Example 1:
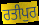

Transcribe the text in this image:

ਰਤੀਪੁਰ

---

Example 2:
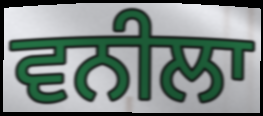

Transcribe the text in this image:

ਵਨੀਲਾ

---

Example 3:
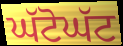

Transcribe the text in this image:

ਘੱਟੋਘੱਟ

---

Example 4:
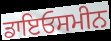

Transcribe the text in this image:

ਡਾਇਓਸਮੀਨ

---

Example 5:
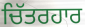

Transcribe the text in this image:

ਚਿੱਤਰਹਾਰ